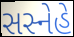
સસ્નેહે